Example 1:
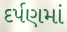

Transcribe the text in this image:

દર્પણમાં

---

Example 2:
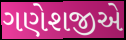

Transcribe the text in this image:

ગણેશજીએ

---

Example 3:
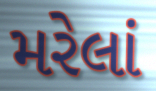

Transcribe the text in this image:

મરેલાં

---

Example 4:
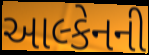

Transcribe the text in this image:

આલ્કેનની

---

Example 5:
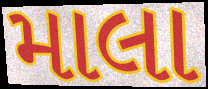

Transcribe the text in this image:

માલા